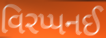
વિરપ્પનઈ